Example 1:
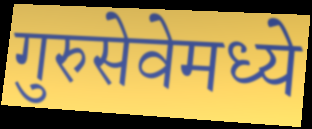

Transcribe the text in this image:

गुरुसेवेमध्ये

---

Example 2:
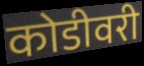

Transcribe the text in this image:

कोडीवरी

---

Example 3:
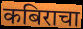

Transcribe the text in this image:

कबिराचा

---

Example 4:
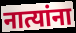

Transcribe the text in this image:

नात्यांना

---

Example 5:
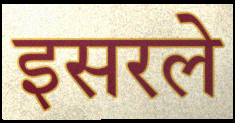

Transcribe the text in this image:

इसरले